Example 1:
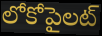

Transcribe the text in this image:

లోకోపైలట్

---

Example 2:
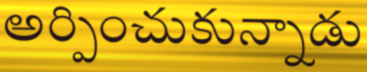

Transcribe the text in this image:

అర్పించుకున్నాడు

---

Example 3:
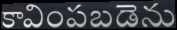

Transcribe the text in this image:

కావింపబడెను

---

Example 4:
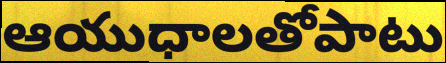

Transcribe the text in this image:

ఆయుధాలతోపాటు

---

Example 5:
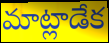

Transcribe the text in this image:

మాట్లాడేక